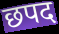
छपद